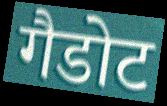
गैडोट